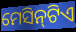
ମେସିନ୍‌ଟିଏ